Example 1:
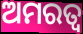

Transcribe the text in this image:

ଅମରତ୍ଵ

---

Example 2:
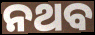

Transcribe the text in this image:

ନଥବ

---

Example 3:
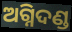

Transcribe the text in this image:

ଅଗ୍ନିଦଣ୍ଡ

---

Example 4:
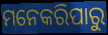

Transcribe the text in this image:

ମନେକରିପାରୁ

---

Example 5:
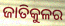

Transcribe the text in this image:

ଜାତିକୁଳର